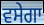
ਵਸੇਗਾ